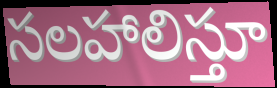
సలహాలిస్తూ